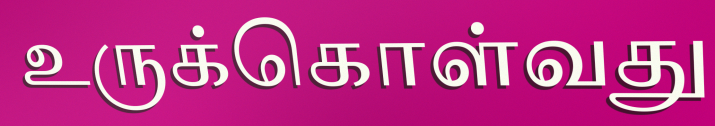
உருக்கொள்வது